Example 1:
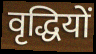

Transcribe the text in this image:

वृद्धियों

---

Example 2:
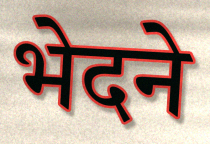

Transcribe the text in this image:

भेदने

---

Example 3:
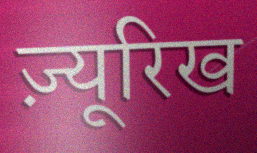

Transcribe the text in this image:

ज़्यूरिख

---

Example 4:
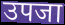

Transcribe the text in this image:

उपजा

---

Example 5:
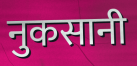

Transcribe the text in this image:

नुकसानी